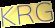
KRG